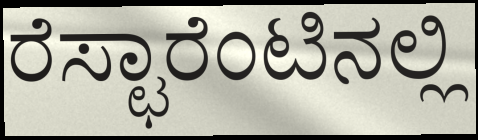
ರೆಸ್ಟಾರೆಂಟಿನಲ್ಲಿ